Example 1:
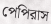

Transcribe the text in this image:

পেপিরাস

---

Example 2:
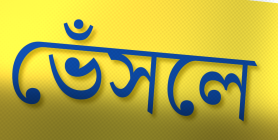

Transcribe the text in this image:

ভেঁসলে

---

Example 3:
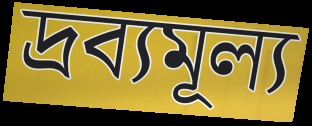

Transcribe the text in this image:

দ্রব্যমূল্য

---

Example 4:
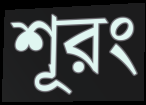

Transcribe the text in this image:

শূরং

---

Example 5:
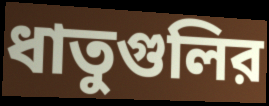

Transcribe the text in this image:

ধাতুগুলির